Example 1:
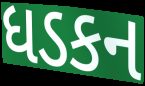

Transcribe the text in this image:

ધડકન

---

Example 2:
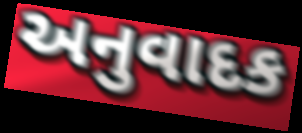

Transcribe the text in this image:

અનુવાદક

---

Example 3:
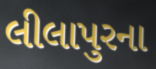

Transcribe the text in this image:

લીલાપુરના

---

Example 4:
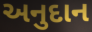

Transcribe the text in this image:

અનુદાન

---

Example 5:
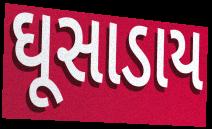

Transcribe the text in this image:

ઘૂસાડાય